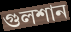
গুলশান